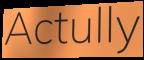
Actully